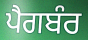
ਪੈਗਬੰਰ